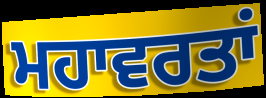
ਮਹਾਵਰਤਾਂ